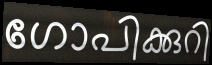
ഗോപിക്കുറി